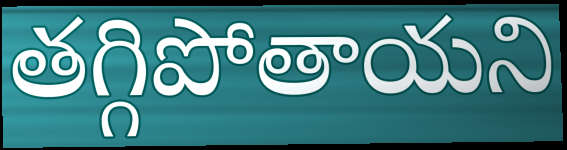
తగ్గిపోతాయని